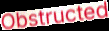
Obstructed